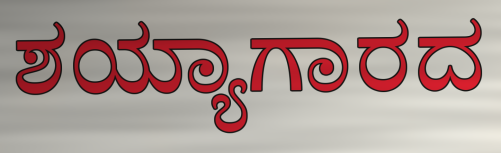
ಶಯ್ಯಾಗಾರದ